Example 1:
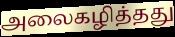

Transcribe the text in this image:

அலைகழித்தது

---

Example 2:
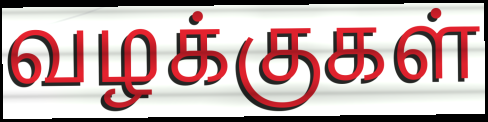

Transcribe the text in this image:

வழக்குகள்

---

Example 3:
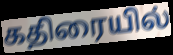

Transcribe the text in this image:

கதிரையில்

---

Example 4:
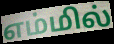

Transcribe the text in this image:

எம்மில்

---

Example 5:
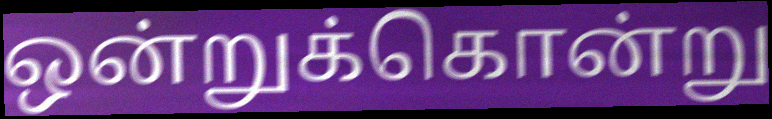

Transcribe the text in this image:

ஒன்றுக்கொன்று